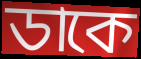
ডাকে